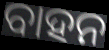
ବାହନ